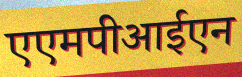
एएमपीआईएन